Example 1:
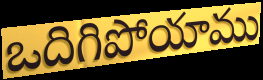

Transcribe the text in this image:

ఒదిగిపోయాము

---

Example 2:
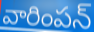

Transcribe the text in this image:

వారింపన్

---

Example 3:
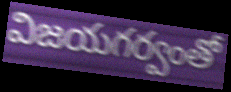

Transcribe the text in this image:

విజయగర్వంతో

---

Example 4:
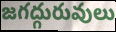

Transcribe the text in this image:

జగద్గురువులు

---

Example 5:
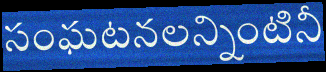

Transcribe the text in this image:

సంఘటనలన్నింటినీ